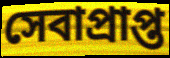
সেবাপ্রাপ্ত